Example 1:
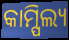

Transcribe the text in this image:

କାମ୍ପିଲ୍ୟ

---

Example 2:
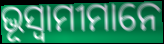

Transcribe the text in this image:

ଭୂସ୍ୱାମୀମାନେ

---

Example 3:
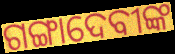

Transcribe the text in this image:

ଗଙ୍ଗାଦେବୀଙ୍କ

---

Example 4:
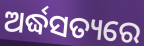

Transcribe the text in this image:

ଅର୍ଦ୍ଧସତ୍ୟରେ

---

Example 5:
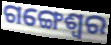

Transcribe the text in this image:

ଗଙ୍ଗେଶ୍ଵର